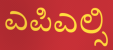
ಎಪಿಎಲ್ಸಿ